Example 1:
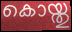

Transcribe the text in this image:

കൊയ്തു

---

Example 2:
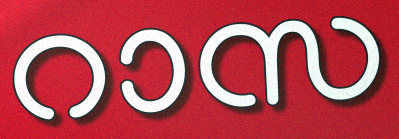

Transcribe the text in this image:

റാസ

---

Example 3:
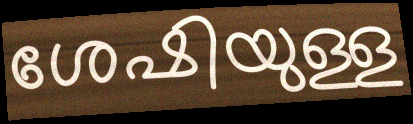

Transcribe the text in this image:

ശേഷിയുള്ള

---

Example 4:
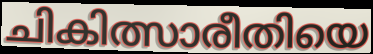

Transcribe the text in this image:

ചികിത്സാരീതിയെ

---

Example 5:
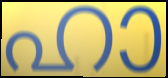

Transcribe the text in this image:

ഹാ